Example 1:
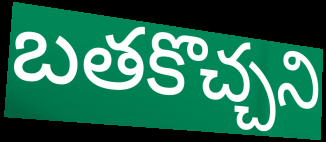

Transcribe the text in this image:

బతకొచ్చని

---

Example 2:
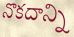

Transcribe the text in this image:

నొకదాన్ని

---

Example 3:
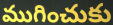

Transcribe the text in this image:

ముగించుకు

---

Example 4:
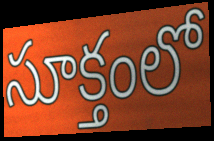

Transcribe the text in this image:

సూక్తంలో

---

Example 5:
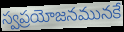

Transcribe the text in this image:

స్వప్రయోజనమునకే